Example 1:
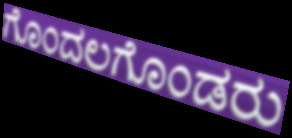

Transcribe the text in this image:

ಗೊಂದಲಗೊಂಡರು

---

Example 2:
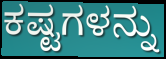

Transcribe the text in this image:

ಕಷ್ಟಗಳನ್ನು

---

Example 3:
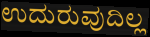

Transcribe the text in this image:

ಉದುರುವುದಿಲ್ಲ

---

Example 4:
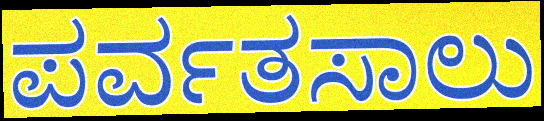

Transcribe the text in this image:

ಪರ್ವತಸಾಲು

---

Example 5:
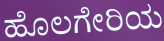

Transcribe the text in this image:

ಹೊಲಗೇರಿಯ